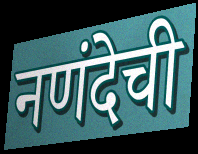
नणंदेची